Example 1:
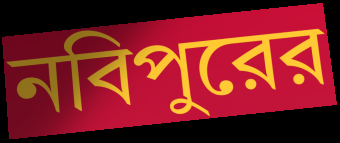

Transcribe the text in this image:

নবিপুরের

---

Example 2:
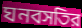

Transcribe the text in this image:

ঘনবসতির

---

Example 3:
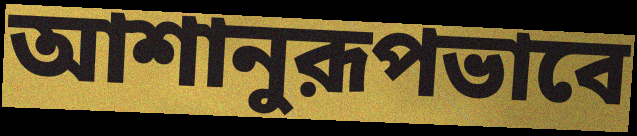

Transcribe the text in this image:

আশানুরূপভাবে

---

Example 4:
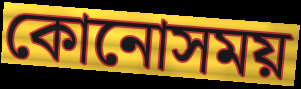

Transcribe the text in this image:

কোনোসময়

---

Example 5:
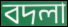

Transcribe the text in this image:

বদলা